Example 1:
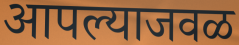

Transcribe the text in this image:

आपल्याजवळ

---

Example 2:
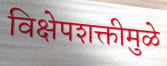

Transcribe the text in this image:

विक्षेपशक्तीमुळे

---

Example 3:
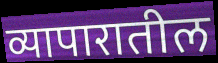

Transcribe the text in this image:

व्यापारातील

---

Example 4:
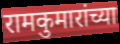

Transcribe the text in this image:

रामकुमारांच्या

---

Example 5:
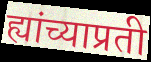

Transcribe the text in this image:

ह्यांच्याप्रती